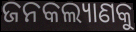
ଜନକଲ୍ୟାଣକୁ